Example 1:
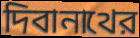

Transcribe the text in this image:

দিবানাথের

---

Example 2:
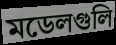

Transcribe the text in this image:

মডেলগুলি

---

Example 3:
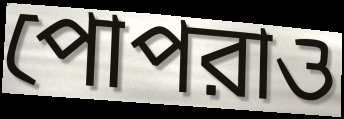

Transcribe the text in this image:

পোপরাও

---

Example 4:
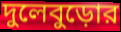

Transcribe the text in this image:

দুলেবুড়োর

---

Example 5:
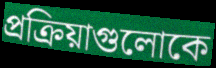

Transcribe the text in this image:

প্রক্রিয়াগুলোকে